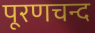
पूरणचन्द